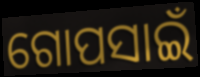
ଗୋପସାଇଁ